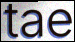
tae